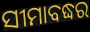
ସୀମାବଦ୍ଧର